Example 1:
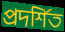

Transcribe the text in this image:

প্রদর্শিত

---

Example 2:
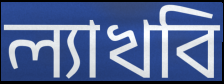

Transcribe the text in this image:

ল্যাখবি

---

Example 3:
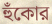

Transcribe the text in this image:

হুঁকোর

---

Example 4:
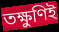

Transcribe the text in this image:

তক্ষুণিই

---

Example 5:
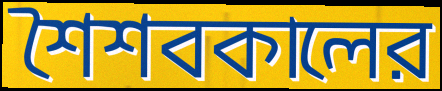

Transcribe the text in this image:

শৈশবকালের